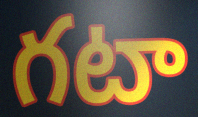
గటా